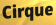
Cirque